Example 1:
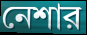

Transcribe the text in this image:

নেশার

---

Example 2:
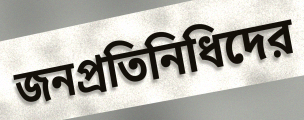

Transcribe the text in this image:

জনপ্রতিনিধিদের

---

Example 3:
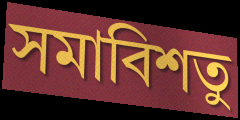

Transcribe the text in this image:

সমাবিশতু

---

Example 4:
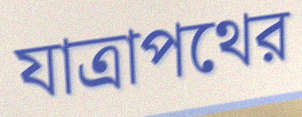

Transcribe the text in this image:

যাত্রাপথের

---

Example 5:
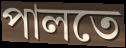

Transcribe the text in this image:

পালতে